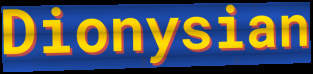
Dionysian